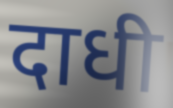
दाधी